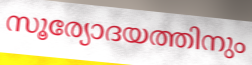
സൂര്യോദയത്തിനും